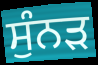
ਸੁੰਨੜ